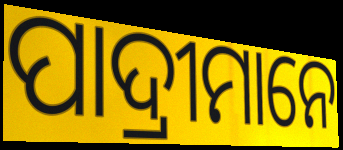
ପାଦ୍ରୀମାନେ